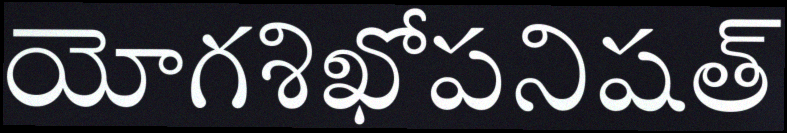
యోగశిఖోపనిషత్